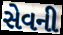
સેવની